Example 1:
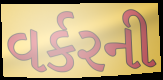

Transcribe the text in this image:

વર્કરની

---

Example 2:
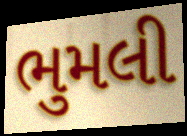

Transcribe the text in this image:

ભુમલી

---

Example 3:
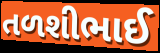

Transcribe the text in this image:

તળશીભાઈ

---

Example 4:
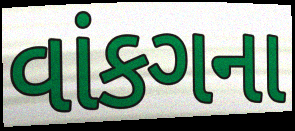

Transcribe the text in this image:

વાંકગના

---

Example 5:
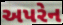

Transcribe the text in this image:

અપરેન